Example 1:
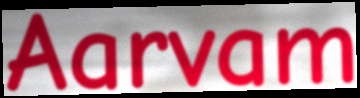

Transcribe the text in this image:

Aarvam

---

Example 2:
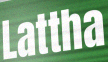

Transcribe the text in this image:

Lattha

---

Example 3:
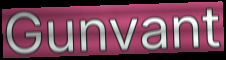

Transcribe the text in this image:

Gunvant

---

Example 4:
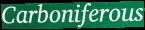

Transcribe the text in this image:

Carboniferous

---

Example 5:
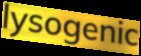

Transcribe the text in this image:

lysogenic